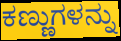
ಕಣ್ಣುಗಳನ್ನು